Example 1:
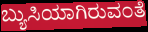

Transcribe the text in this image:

ಬ್ಯುಸಿಯಾಗಿರುವಂತೆ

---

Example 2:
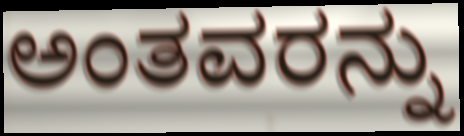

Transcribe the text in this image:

ಅಂತವರನ್ನು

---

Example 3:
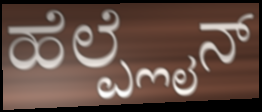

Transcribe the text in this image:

ಹೆಲ್ಪ್ಲೈನ್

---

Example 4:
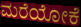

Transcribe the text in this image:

ಮರೆಯೋಕೆ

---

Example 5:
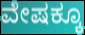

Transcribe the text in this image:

ವೇಷಕ್ಕೂ